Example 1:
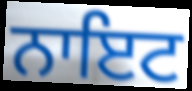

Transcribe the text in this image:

ਨਾਇਟ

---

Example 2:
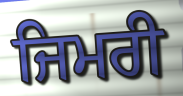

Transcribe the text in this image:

ਜਿਮਰੀ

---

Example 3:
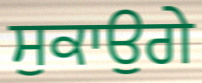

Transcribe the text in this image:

ਸੁਕਾਉਗੇ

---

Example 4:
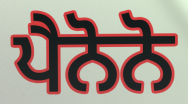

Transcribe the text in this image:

ਪੈਨੋਨੋ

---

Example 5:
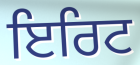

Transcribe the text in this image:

ਇਰਿਟ